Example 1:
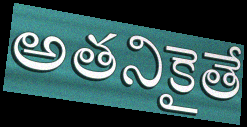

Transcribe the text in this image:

అతనికైతే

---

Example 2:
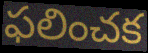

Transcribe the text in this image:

ఫలించక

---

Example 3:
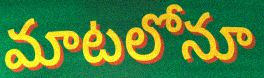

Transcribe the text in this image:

మాటలోనూ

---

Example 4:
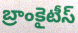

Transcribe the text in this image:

బ్రాంకైటీస్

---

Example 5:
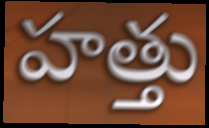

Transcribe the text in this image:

హత్తు